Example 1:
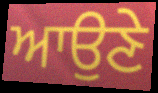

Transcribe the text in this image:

ਆਉਣੇ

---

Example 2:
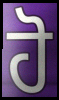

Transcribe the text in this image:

ਹੋ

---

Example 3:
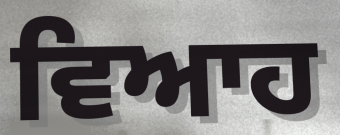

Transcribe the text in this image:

ਵਿਆਹ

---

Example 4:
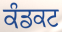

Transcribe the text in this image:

ਕੰਡਕਟ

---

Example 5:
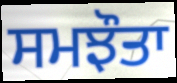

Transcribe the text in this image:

ਸਮਝੌਤਾ